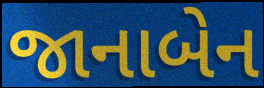
જાનાબેન